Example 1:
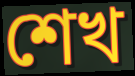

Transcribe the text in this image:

শেখ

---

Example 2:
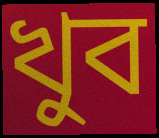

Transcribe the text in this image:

খুব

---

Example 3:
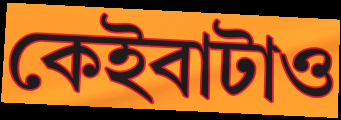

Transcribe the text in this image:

কেইবাটাও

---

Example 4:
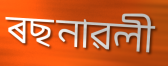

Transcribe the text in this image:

ৰছনাৱলী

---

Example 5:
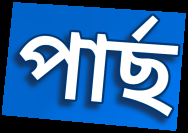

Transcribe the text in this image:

পাৰ্ছ